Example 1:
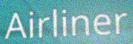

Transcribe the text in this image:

Airliner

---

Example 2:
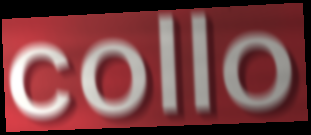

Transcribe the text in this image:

collo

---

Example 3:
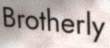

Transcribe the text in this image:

Brotherly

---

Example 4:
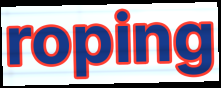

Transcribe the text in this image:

roping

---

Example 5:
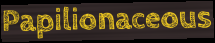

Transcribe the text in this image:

Papilionaceous